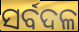
ସର୍ବଦଳ